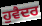
ਹੁਵੈਦਰ